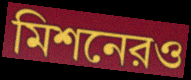
মিশনেরও